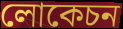
লোকেচন